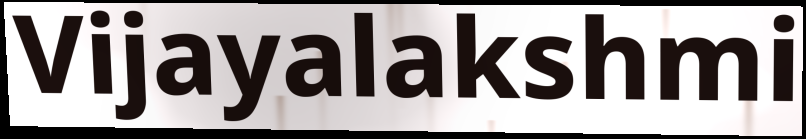
Vijayalakshmi